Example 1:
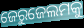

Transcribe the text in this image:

ଜେରୁଜେଲମକୁ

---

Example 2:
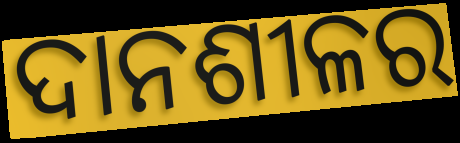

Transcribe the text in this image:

ଦାନଶୀଳର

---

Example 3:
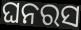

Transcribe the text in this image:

ଘନରସ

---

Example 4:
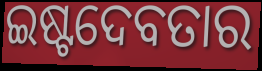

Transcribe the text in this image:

ଇଷ୍ଟଦେବତାର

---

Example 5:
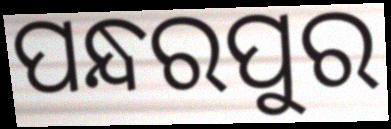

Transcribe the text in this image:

ପନ୍ଧରପୁର